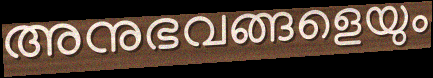
അനുഭവങ്ങളെയും